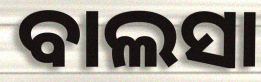
ବାଲସା